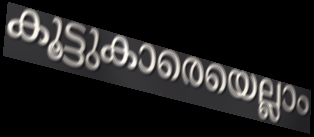
കൂട്ടുകാരെയെല്ലാം